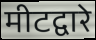
मीटद्वारे